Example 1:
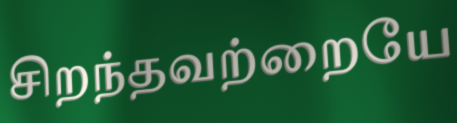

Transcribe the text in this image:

சிறந்தவற்றையே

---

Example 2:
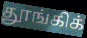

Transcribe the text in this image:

தூங்கிக்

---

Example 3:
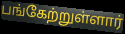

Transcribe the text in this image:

பங்கேற்றுள்ளார்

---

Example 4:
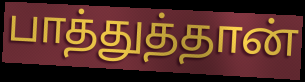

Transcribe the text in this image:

பாத்துத்தான்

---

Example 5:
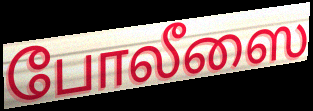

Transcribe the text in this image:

போலீஸை